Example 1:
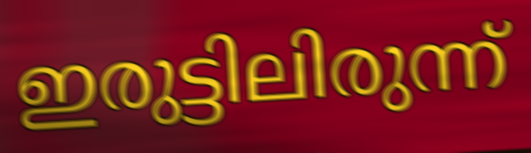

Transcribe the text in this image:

ഇരുട്ടിലിരുന്ന്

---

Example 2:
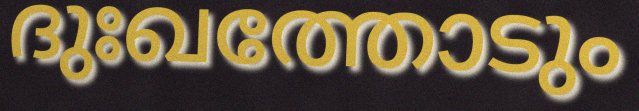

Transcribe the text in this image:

ദുഃഖത്തോടും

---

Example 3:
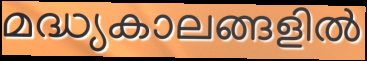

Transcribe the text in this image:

മദ്ധ്യകാലങ്ങളിൽ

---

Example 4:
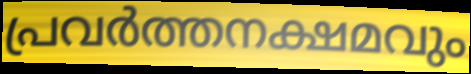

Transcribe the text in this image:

പ്രവർത്തനക്ഷമവും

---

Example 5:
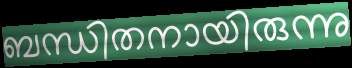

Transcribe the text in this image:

ബന്ധിതനായിരുന്നു